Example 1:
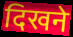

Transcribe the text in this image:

दिखने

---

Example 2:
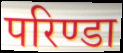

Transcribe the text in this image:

परिण्डा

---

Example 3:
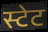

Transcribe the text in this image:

स्टेट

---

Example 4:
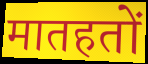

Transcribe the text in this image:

मातहतों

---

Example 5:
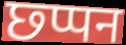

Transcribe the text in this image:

छ्प्पन